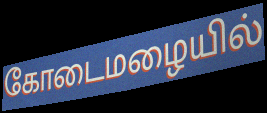
கோடைமழையில்